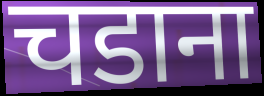
चडाना